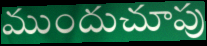
ముందుచూపు